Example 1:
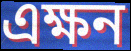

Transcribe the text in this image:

এক্ষন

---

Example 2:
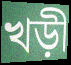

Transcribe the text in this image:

খড়ী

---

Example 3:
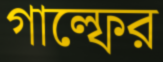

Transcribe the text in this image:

গাল্ফের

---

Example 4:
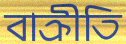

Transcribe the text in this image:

বাক্রীতি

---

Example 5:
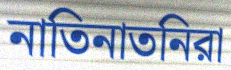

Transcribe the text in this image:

নাতিনাতনিরা